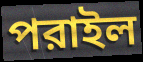
পরাইল